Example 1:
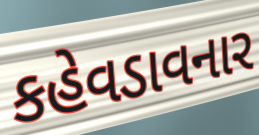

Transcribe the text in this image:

કહેવડાવનાર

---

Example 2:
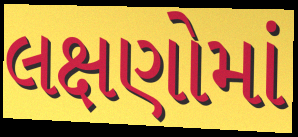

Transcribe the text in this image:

લક્ષણોમાં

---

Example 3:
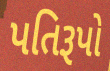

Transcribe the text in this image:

પતિરૂપો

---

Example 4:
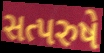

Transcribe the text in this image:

સત્પરુષે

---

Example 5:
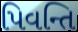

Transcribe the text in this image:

પિવન્તિ